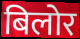
बिलोर